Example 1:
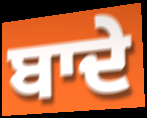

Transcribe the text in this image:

ਬਾਦੇ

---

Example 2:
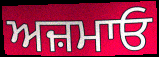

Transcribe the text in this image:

ਅਜ਼ਮਾਓ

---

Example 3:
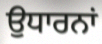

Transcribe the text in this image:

ਉਧਾਰਨਾਂ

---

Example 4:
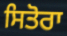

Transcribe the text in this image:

ਸਿਤੋਰਾ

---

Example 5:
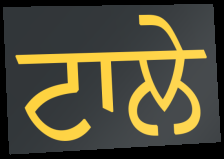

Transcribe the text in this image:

ਟਾਲੇ